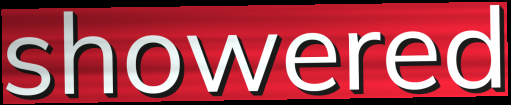
showered